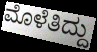
ಮೊಳೆತಿದ್ದು